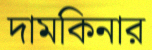
দামকিনার